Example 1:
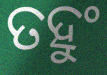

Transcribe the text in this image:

ତହୁଂ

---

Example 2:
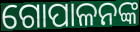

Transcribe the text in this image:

ଗୋପାଳନଙ୍କ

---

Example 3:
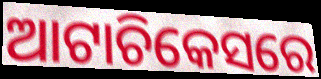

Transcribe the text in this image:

ଆଟାଚିକେସରେ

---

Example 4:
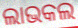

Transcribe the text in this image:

ଲାଭକଲ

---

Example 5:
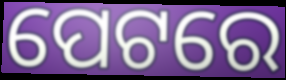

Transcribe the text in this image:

ପେଟରେ